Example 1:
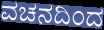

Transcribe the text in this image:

ವಚನದಿಂದ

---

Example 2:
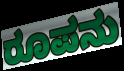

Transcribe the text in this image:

ರೂಪನು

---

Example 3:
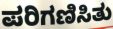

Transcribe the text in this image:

ಪರಿಗಣಿಸಿತು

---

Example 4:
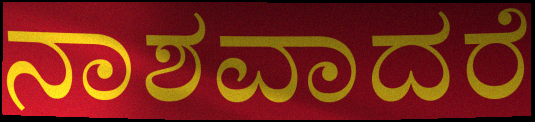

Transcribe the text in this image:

ನಾಶವಾದರೆ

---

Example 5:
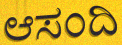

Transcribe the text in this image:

ಆಸಂದಿ